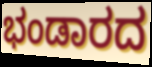
ಭಂಡಾರದ